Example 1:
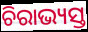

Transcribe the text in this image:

ଚିରାଭ୍ୟସ୍ତ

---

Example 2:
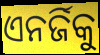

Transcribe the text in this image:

ଏନର୍ଜିକୁ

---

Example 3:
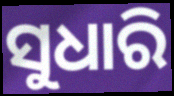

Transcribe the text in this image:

ସୁଧାରି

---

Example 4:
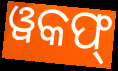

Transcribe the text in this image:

ୱକଫ୍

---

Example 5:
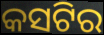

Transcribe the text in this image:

କସଟିର